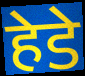
हेडे